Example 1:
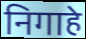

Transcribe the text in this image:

निगाहे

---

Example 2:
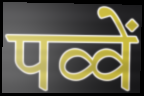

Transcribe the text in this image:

पव्वें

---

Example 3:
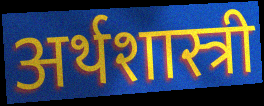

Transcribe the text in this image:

अर्थशास्त्री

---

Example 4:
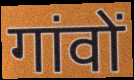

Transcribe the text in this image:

गांवों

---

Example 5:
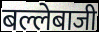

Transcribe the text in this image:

बल्लेबाजी